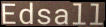
Edsall